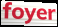
foyer